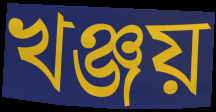
খঞ্জয়